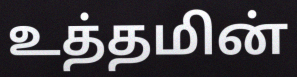
உத்தமின்